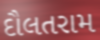
દૌલતરામ